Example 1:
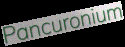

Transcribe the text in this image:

Pancuronium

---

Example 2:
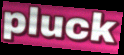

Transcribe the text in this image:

pluck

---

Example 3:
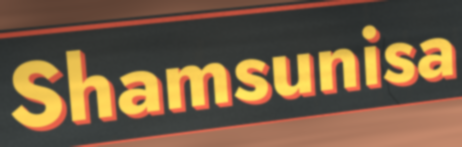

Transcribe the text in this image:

Shamsunisa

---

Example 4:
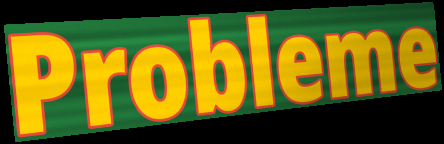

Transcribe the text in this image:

Probleme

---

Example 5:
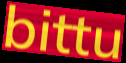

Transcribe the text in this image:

bittu